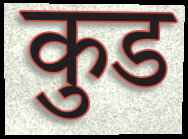
कुड